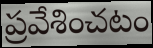
ప్రవేశించటం